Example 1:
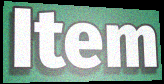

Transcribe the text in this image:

Item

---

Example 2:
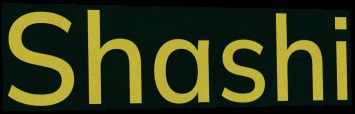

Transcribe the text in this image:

Shashi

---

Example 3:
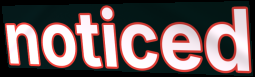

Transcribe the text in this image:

noticed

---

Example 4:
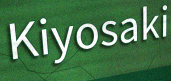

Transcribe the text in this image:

Kiyosaki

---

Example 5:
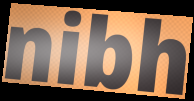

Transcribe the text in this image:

nibh